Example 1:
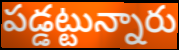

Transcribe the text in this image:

పడ్డట్టున్నారు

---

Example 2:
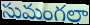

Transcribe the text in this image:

సుమంగలా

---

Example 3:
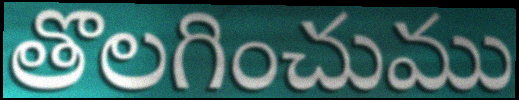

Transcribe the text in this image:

తొలగించుము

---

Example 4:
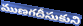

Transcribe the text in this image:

ముణగదీసుకుని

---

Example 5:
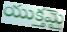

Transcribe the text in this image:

యుక్తమై